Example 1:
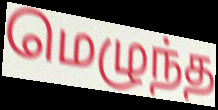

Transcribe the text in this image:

மெழுந்த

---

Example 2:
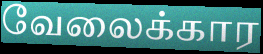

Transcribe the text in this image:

வேலைக்கார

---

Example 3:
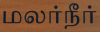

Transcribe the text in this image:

மலர்நீர்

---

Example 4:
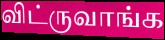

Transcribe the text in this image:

விட்ருவாங்க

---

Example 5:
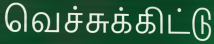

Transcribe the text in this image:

வெச்சுக்கிட்டு